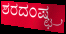
ಶರದಂಷ್ಟ್ರ